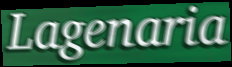
Lagenaria